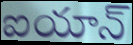
ఐయాన్